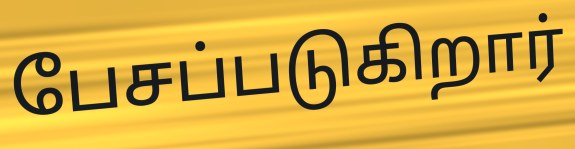
பேசப்படுகிறார்